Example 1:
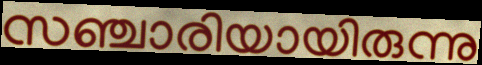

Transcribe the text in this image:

സഞ്ചാരിയായിരുന്നു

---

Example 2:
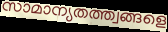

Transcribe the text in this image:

സാമാന്യതത്ത്വങ്ങളെ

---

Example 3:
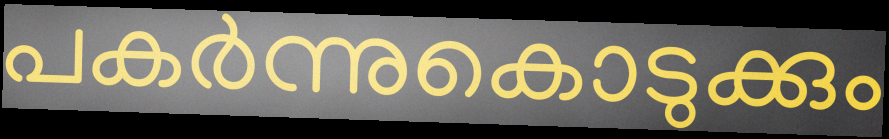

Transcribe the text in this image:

പകർന്നുകൊടുക്കും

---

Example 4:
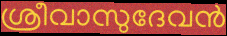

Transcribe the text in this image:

ശ്രീവാസുദേവൻ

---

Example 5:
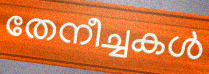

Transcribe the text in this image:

തേനീച്ചകൾ